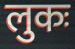
लुकः